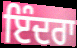
ਇੰਦਰਾ